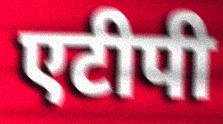
एटीपी